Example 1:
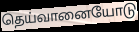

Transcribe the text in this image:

தெய்வானையோடு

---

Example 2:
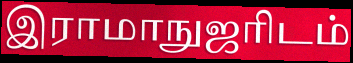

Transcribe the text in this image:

இராமாநுஜரிடம்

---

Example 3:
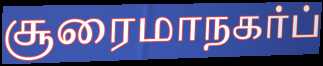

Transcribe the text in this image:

சூரைமாநகர்ப்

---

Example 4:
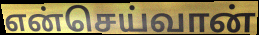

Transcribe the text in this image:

என்செய்வான்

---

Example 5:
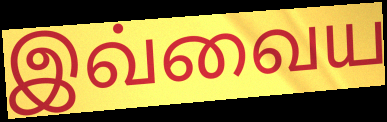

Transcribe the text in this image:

இவ்வைய